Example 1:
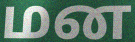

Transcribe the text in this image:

மன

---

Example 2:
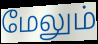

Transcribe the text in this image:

மேலும்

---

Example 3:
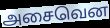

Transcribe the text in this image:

அசைவென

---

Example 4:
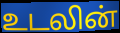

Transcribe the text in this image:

உடலின்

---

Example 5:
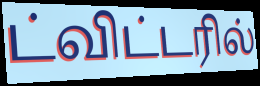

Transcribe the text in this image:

ட்விட்டரில்